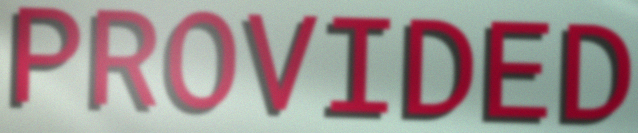
PROVIDED